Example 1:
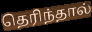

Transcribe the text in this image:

தெரிந்தால்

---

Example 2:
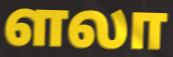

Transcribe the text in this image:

ளலா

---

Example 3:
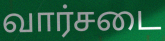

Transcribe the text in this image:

வார்சடை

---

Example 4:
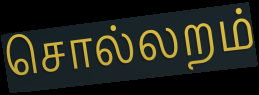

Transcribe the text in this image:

சொல்லறம்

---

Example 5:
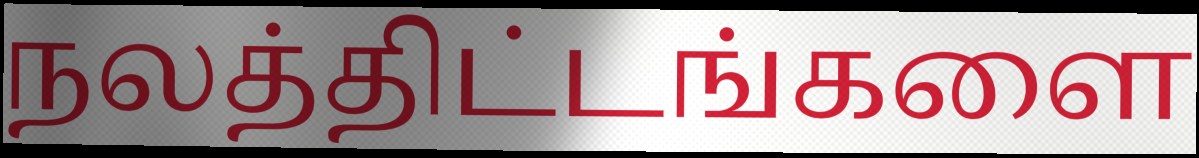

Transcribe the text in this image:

நலத்திட்டங்களை